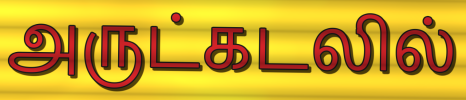
அருட்கடலில்